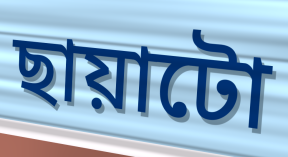
ছায়াটো